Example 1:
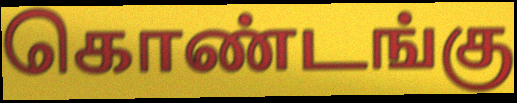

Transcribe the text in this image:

கொண்டங்கு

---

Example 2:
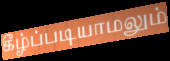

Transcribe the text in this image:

கீழ்ப்படியாமலும்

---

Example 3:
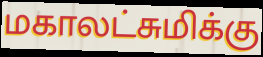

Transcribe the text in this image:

மகாலட்சுமிக்கு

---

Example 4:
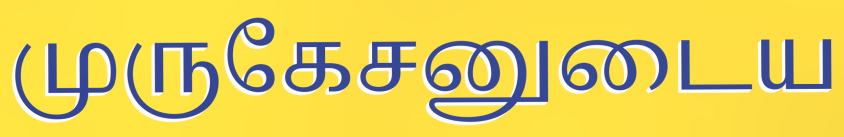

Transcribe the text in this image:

முருகேசனுடைய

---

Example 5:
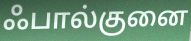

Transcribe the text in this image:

ஃபால்குனை